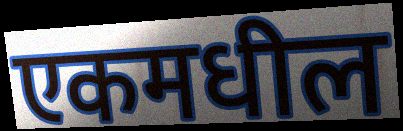
एकमधील